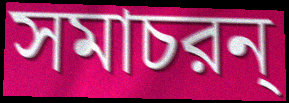
সমাচরন্